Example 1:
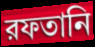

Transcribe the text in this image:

রফতানি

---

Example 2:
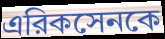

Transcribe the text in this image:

এরিকসেনকে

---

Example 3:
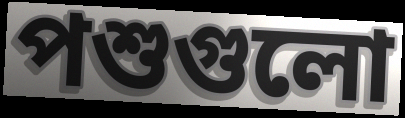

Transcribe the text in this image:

পশুগুলো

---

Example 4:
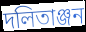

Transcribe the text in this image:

দলিতাঞ্জন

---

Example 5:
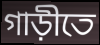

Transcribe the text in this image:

গাড়ীতে